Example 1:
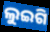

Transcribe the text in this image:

ଲୁଇଗି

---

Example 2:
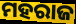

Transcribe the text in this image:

ମହରାଜ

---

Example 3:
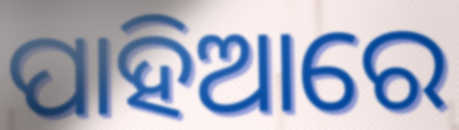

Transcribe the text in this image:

ପାହିଆରେ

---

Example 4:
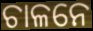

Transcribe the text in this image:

ଚାଳନେ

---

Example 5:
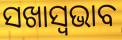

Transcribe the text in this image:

ସଖାସ୍ୱଭାବ